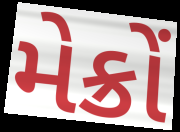
મેક્રોં